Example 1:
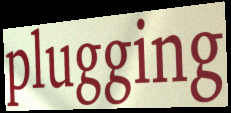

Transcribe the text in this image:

plugging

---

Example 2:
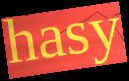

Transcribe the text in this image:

hasy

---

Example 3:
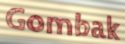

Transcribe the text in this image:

Gombak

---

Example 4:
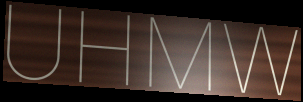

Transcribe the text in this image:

UHMW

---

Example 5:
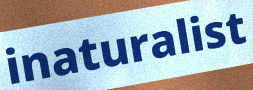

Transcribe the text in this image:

inaturalist